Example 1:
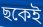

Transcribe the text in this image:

ছকেই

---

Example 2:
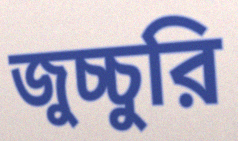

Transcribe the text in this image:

জুচ্চুরি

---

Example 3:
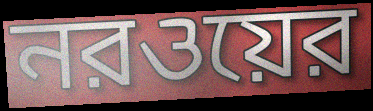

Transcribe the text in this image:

নরওয়ের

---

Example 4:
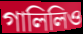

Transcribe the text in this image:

গালিলিও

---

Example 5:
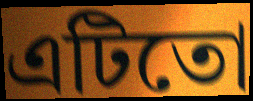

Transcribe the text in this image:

এটিতো